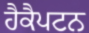
ਹੈਕੈਪਟਨ